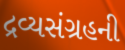
દ્રવ્યસંગ્રહની